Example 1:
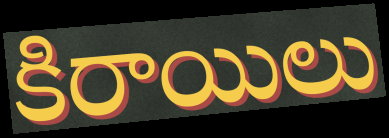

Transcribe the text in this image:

కిరాయిలు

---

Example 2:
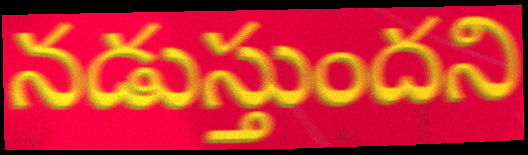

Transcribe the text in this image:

నడుస్తుందని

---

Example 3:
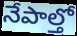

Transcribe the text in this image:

నేపాల్తో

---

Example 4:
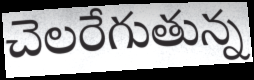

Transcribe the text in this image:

చెలరేగుతున్న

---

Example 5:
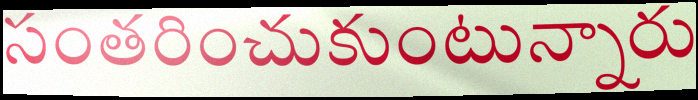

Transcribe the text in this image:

సంతరించుకుంటున్నారు